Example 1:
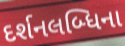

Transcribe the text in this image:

દર્શનલબ્ધિના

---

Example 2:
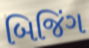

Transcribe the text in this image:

બિજિંગ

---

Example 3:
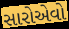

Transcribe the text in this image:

સારોએવો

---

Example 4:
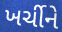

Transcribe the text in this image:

ખર્ચીને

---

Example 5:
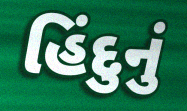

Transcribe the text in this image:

હિંદુનું